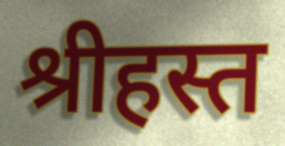
श्रीहस्त